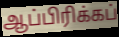
ஆப்பிரிக்கப்